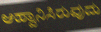
ಆಹ್ವಾನಿಸಿರುವುದು